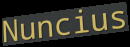
Nuncius